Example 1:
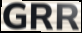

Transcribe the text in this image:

GRR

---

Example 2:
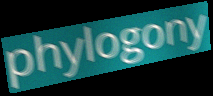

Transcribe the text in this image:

phylogony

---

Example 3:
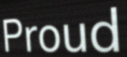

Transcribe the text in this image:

Proud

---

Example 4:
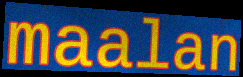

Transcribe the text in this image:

maalan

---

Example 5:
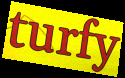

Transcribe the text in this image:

turfy